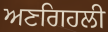
ਅਣਗਿਹਲੀ